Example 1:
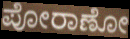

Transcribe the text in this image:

ಪೋರಾಣೋ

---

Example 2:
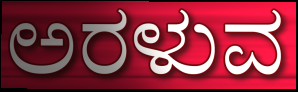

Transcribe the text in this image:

ಅರಳುವ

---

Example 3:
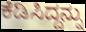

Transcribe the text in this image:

ಕೆಡಿಸಿದ್ದನ್ನು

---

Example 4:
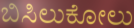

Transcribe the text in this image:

ಬಿಸಿಲುಕೋಲು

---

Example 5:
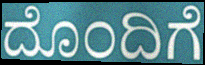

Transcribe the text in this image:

ದೊಂದಿಗೆ